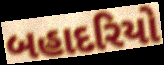
બહાદરિયો